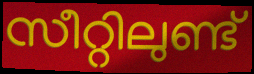
സീറ്റിലുണ്ട്